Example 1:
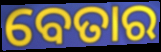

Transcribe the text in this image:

ବେତାର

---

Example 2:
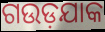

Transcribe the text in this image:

ଗଉଡ଼ଯାକ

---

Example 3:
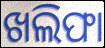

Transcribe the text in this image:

ଖଲିଫା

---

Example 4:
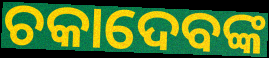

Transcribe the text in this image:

ଚକାଦେବଙ୍କ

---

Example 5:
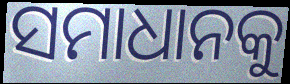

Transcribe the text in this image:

ସମାଧାନକୁ